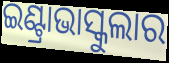
ଇଣ୍ଟ୍ରାଭାସ୍କୁଲାର